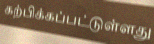
கற்பிக்கப்பட்டுள்ளது